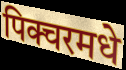
पिक्चरमधे